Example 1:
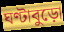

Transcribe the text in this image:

ঘণ্টাবুড়ো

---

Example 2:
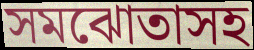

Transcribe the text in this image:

সমঝোতাসহ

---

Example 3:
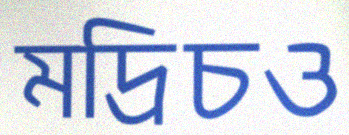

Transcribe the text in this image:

মদ্রিচও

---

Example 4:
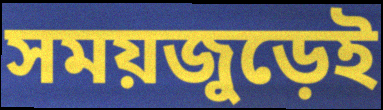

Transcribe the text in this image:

সময়জুড়েই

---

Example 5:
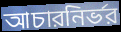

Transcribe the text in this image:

আচারনির্ভর